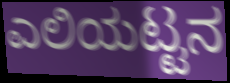
ಎಲಿಯಟ್ಟನ